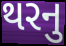
થરનુ